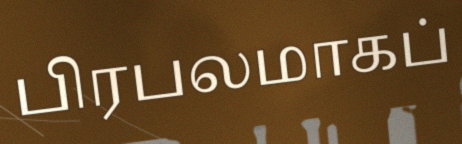
பிரபலமாகப்